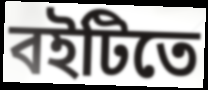
বইটিতে